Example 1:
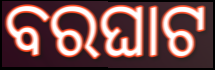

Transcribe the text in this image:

ବରଘାଟ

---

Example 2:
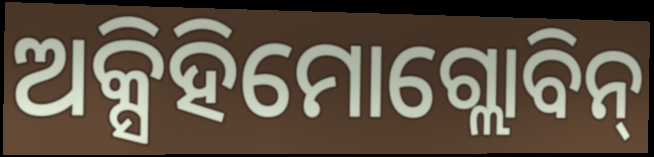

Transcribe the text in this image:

ଅକ୍ସିହିମୋଗ୍ଲୋବିନ୍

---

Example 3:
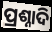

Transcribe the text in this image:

ପ୍ରଶ୍ନାଦି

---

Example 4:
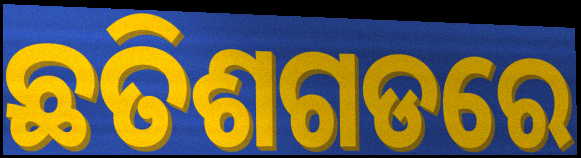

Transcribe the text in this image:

ଛତିଶଗଡରେ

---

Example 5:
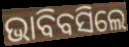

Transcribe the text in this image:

ଭାବିବସିଲେ